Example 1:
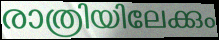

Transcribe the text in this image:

രാത്രിയിലേക്കും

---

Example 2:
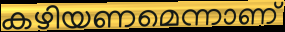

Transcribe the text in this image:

കഴിയണമെന്നാണ്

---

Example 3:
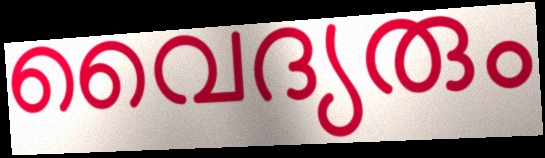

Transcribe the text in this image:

വൈദ്യരും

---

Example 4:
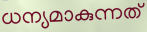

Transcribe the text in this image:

ധന്യമാകുന്നത്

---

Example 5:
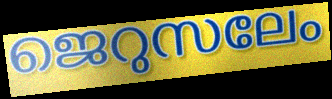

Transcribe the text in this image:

ജെറുസലേം